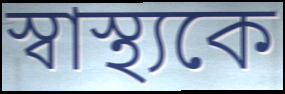
স্বাস্থ্যকে